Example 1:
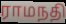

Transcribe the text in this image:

ராமநதி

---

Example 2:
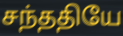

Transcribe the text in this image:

சந்ததியே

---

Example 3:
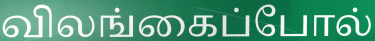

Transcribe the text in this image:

விலங்கைப்போல்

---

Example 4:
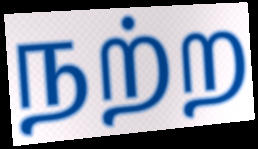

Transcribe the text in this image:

நற்ற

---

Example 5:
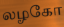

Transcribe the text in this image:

லழகோ